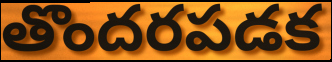
తొందరపడక